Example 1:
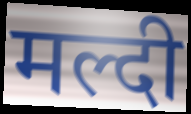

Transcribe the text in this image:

मल्दी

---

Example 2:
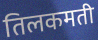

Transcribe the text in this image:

तिलकमती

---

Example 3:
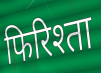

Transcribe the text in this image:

फिरिश्ता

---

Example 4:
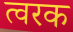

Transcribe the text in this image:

त्वरक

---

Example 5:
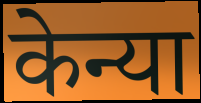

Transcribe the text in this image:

केन्या